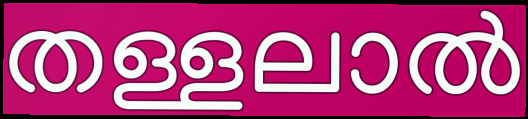
തള്ളലാൽ